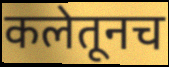
कलेतूनच